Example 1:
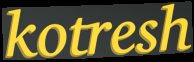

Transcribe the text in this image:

kotresh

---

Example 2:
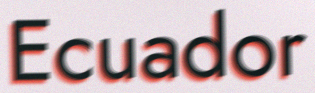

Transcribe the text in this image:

Ecuador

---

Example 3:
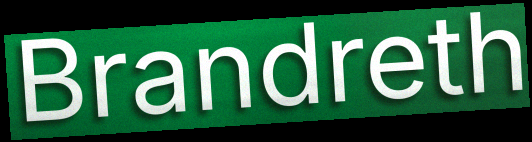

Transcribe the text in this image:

Brandreth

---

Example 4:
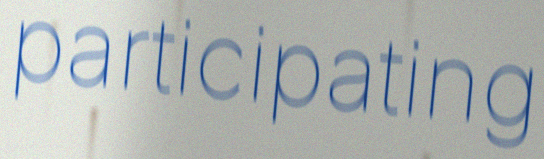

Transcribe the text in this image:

participating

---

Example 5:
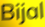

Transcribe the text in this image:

Bijal